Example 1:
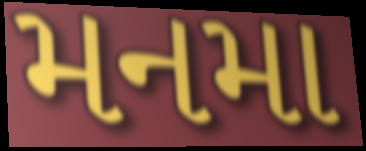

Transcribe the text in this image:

મનમા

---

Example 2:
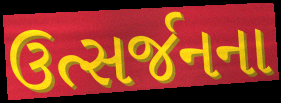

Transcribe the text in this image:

ઉત્સર્જનના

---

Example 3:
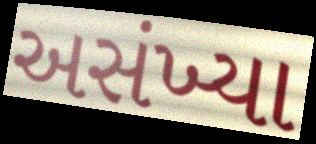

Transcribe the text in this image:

અસંખ્યા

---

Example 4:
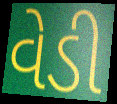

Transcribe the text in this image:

વેડી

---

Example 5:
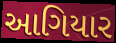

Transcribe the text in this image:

આગિયાર